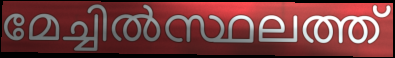
മേച്ചിൽസ്ഥലത്ത്